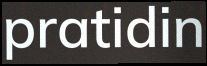
pratidin